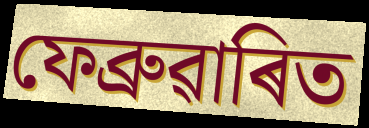
ফেব্ৰুৱাৰিত